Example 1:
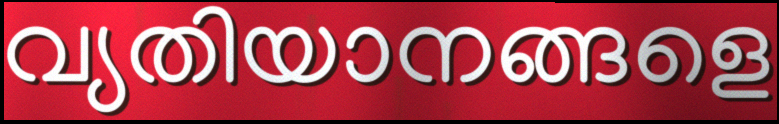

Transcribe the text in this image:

വ്യതിയാനങ്ങളെ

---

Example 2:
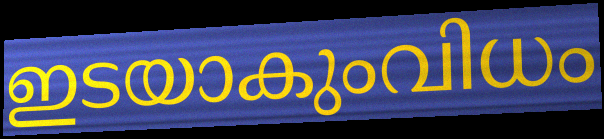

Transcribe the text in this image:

ഇടയാകുംവിധം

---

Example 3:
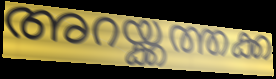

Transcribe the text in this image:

അറയ്ക്കത്തക്ക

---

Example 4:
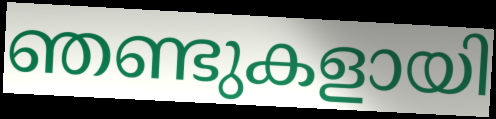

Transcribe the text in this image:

ഞണ്ടുകളായി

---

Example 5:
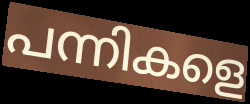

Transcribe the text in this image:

പന്നികളെ